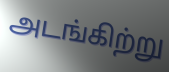
அடங்கிற்று